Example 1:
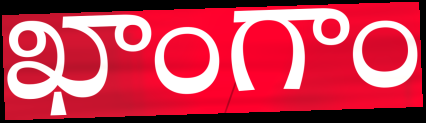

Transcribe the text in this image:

ఖాంగాం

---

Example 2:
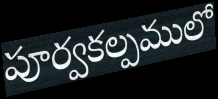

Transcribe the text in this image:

పూర్వకల్పములో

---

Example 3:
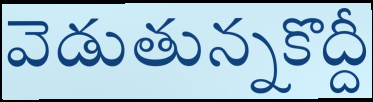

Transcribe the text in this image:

వెడుతున్నకొద్దీ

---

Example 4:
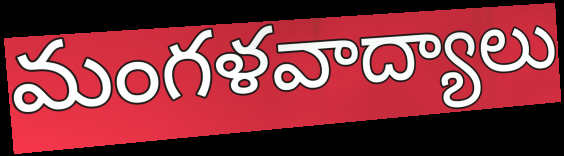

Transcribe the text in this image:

మంగళవాద్యాలు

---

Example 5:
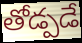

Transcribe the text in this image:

తోడ్పడే